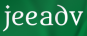
jeeadv